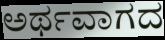
ಅರ್ಥವಾಗದ